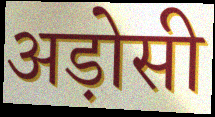
अड़ोसी